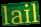
lail